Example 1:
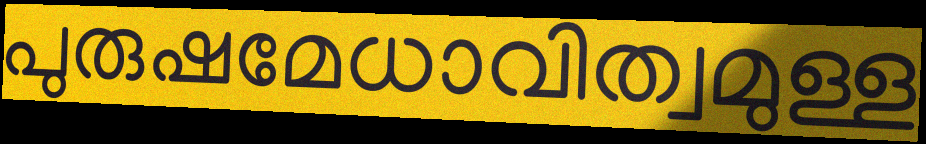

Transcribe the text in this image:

പുരുഷമേധാവിത്വമുള്ള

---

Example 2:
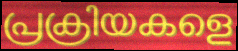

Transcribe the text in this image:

പ്രക്രിയകളെ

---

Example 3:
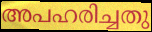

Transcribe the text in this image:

അപഹരിച്ചതു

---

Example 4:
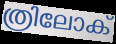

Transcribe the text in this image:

ത്രിലോക്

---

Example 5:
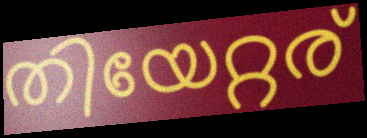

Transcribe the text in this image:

തിയേറ്റര്